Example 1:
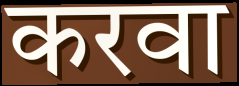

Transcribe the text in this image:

करवा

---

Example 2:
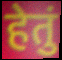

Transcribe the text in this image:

हेतुं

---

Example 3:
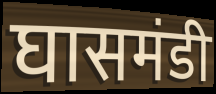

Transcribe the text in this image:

घासमंडी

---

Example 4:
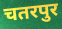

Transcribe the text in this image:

चतरपुर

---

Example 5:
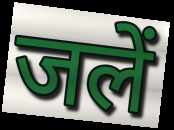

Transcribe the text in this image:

जलें